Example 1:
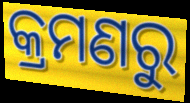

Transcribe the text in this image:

କ୍ରମଣରୁ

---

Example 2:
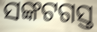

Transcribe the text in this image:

ସଙ୍କଟଗସ୍ତ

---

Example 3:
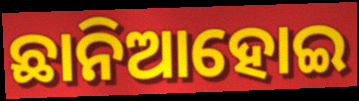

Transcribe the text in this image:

ଛାନିଆହୋଇ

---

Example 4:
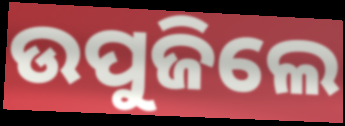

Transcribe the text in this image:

ଉପୁଜିଲେ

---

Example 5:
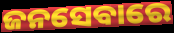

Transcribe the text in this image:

ଜନସେବାରେ